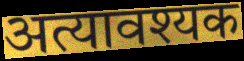
अत्यावश्‍यक